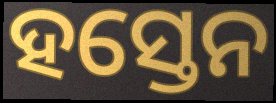
ହସ୍ତେନ